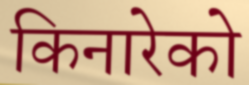
किनारेको